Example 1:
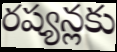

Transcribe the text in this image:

రష్యన్లకు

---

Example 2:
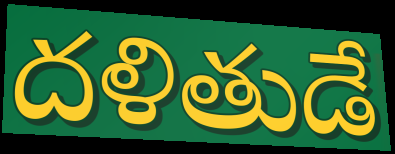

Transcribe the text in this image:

దళితుడే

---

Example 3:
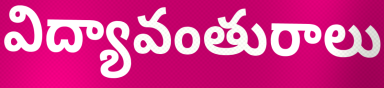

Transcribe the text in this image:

విద్యావంతురాలు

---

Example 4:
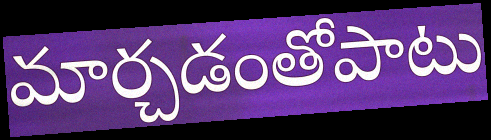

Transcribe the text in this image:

మార్చడంతోపాటు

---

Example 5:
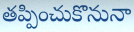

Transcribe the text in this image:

తప్పించుకొనునా